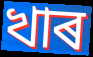
খাৰ